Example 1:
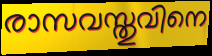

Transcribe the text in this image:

രാസവസ്തുവിനെ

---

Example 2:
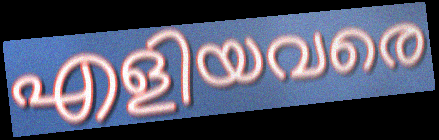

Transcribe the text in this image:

എളിയവരെ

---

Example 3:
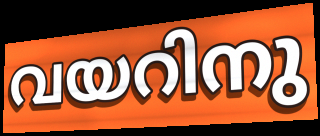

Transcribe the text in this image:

വയറിനു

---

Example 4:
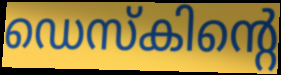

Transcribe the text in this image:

ഡെസ്കിന്റെ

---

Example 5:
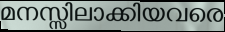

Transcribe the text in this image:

മനസ്സിലാക്കിയവരെ